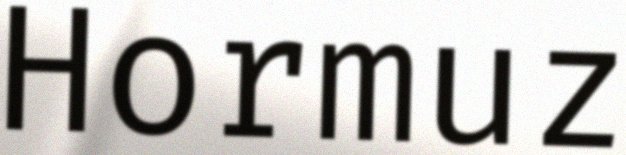
Hormuz